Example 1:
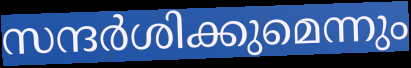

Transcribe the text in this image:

സന്ദർശിക്കുമെന്നും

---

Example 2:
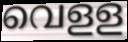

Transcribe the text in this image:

വെളള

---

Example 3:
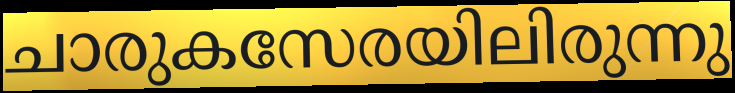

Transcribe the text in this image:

ചാരുകസേരയിലിരുന്നു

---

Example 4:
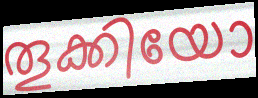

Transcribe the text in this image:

തൂക്കിയോ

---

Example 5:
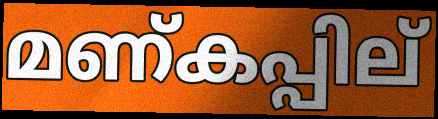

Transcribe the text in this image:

മണ്കപ്പില്